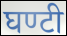
घण्टी